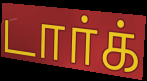
டார்க்